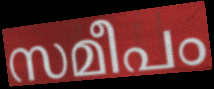
സമീപം